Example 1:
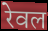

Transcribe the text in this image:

रेवल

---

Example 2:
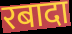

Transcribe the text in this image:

रबादा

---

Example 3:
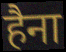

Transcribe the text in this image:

हैना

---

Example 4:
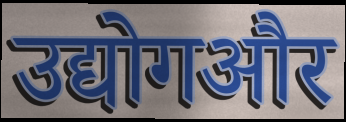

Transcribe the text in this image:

उद्योगऔर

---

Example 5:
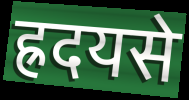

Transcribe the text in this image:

ह्रदयसे